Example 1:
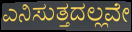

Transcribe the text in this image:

ಎನಿಸುತ್ತದಲ್ಲವೇ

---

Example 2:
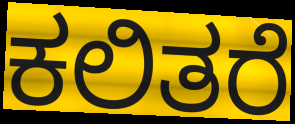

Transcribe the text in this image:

ಕಲಿತರೆ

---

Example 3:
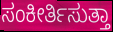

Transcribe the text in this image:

ಸಂಕೀರ್ತಿಸುತ್ತಾ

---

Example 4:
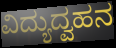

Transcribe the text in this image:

ವಿದ್ಯುದ್ವಹನ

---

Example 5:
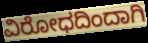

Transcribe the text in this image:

ವಿರೋಧದಿಂದಾಗಿ